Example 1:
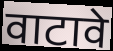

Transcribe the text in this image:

वाटावे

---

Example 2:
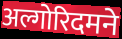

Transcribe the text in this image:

अल्गोरिदमने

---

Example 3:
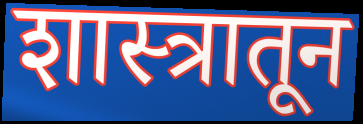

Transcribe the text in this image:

शास्त्रातून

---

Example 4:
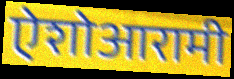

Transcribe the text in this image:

ऐशोआरामी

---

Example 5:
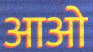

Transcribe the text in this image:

आओ